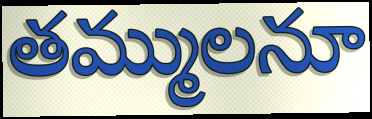
తమ్ములనూ